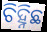
ଚିହ୍ନିଛ